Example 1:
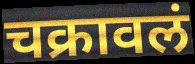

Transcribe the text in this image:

चक्रावलं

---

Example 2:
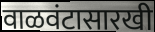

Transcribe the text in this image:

वाळवंटासारखी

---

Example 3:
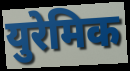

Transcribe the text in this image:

युरेमिक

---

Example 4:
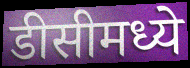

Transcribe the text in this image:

डीसीमध्ये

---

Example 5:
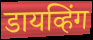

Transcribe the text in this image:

डायव्हिंग